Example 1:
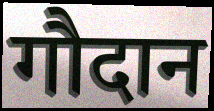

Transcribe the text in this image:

गौदान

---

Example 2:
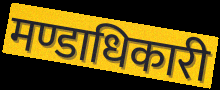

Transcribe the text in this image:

मण्डाधिकारी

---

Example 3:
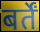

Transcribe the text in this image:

बर्तें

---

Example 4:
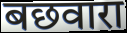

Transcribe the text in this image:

बछवारा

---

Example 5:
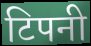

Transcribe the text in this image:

टिपनी